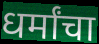
धर्मांचा